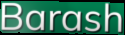
Barash